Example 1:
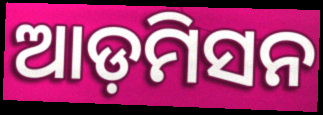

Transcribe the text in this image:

ଆଡ଼ମିସନ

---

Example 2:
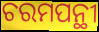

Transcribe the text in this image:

ଚରମପନ୍ଥୀ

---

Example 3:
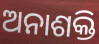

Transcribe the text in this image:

ଅନାଶକ୍ତି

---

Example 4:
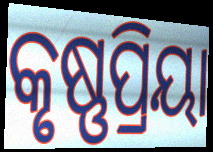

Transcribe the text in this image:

କୃଷ୍ଣପ୍ରିୟା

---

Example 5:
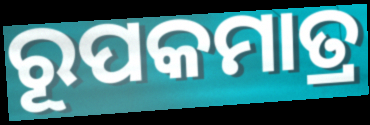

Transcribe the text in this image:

ରୂପକମାତ୍ର